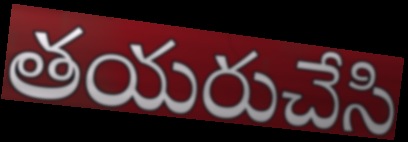
తయరుచేసి